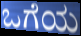
ಒಗೆಯ